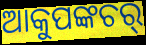
ଆକୁପଙ୍କଚର୍